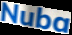
Nuba